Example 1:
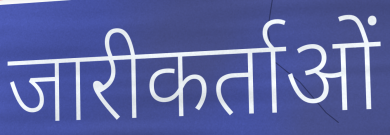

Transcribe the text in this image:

जारीकर्ताओं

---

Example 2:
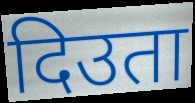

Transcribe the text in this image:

दिउता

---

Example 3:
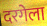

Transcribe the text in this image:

दरगेला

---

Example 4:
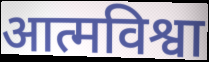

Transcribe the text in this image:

आत्मविश्वा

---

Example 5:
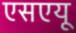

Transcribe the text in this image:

एसएयू